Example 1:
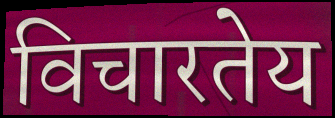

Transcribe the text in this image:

विचारतेय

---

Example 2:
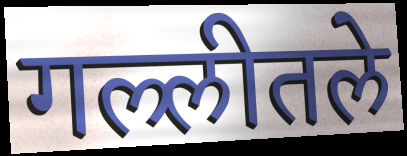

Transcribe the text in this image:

गल्लीतले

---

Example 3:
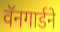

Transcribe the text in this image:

वॅनगार्डने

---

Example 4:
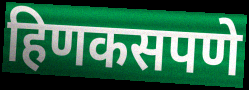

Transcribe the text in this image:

हिणकसपणे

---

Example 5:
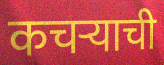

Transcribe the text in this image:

कचर्‍याची